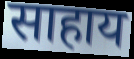
साहाय